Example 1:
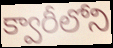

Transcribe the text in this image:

క్వారీలోని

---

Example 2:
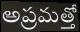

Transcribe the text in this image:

అప్రమత్తో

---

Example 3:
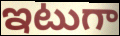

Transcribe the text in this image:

ఇటుగా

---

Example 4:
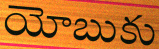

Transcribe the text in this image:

యోబుకు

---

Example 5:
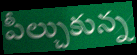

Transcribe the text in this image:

పీల్చుకున్న